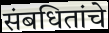
संबधितांचे